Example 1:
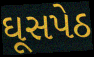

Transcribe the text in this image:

ઘૂસપેઠ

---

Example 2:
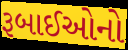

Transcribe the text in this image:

રૂબાઈઓનો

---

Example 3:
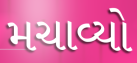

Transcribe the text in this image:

મચાવ્યો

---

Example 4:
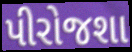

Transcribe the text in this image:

પીરોજશા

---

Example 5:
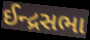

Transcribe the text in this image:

ઈન્દ્રસભા